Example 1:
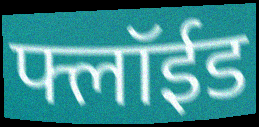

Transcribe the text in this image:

फ्लॉईड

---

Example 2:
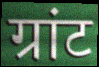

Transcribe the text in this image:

ग्रांट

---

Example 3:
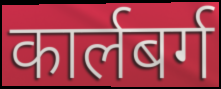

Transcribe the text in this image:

कार्लबर्ग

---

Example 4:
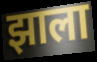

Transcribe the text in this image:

झाला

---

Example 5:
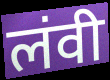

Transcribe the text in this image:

लंवी